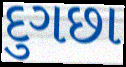
દુગછા